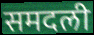
समदली